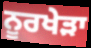
ਨੂਰਖੇੜਾ